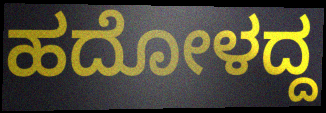
ಹದೋಳದ್ದ